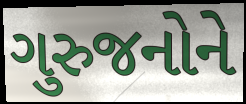
ગુરુજનોને